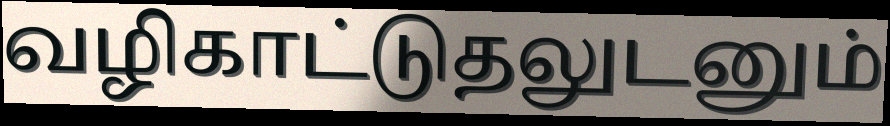
வழிகாட்டுதலுடனும்